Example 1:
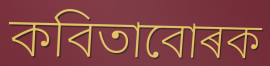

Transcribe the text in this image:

কবিতাবোৰক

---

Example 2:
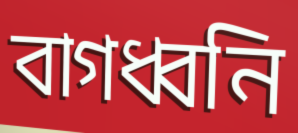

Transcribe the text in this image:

বাগধ্বনি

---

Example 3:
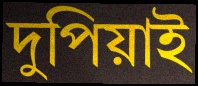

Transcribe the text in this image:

দুপিয়াই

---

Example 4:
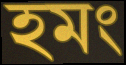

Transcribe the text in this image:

হমং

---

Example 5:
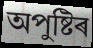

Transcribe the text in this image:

অপুষ্টিৰ